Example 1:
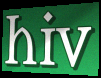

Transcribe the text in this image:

hiv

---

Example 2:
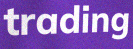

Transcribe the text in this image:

trading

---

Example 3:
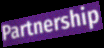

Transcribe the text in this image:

Partnership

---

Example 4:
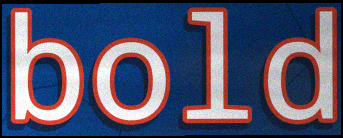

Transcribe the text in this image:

bold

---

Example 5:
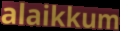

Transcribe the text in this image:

alaikkum